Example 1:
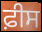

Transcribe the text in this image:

ਫ਼ੀਸ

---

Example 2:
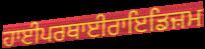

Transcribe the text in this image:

ਹਾਈਪਰਥਾਈਰਾਇਡਿਜ਼ਮ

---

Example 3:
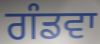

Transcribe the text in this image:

ਗੰਡਵਾ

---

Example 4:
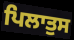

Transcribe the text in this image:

ਪਿਲਾਤੁਸ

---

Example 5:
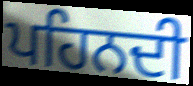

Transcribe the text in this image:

ਪਹਿਨਦੀ